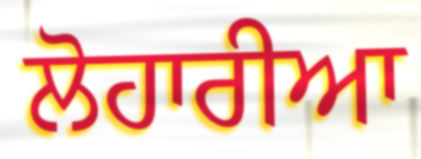
ਲੋਹਾਰੀਆ